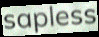
sapless